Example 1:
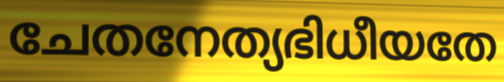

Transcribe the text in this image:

ചേതനേത്യഭിധീയതേ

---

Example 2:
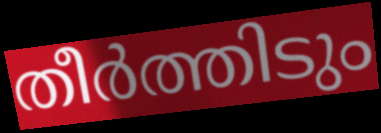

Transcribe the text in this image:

തീർത്തിടും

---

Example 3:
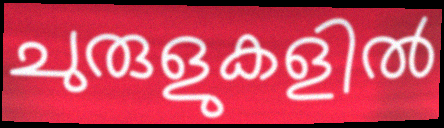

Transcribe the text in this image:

ചുരുളുകളിൽ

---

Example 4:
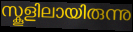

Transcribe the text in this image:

സ്കൂളിലായിരുന്നു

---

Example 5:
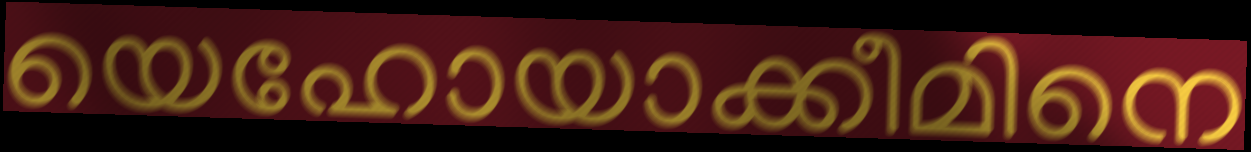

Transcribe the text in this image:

യെഹോയാക്കീമിനെ